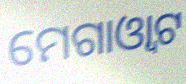
ମେଗାଓ୍ଵାଟ